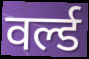
वर्ल्ड